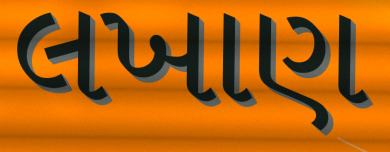
લખાણ